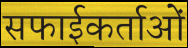
सफाईकर्ताओं